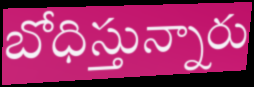
బోధిస్తున్నారు